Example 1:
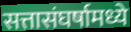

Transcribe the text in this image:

सत्तासंघर्षामध्ये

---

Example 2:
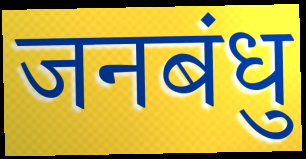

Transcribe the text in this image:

जनबंधु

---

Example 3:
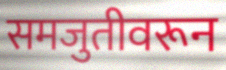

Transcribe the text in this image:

समजुतीवरून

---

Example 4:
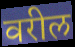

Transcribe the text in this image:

वरील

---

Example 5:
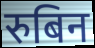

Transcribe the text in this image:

रुबिन